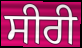
ਸੀਰੀ